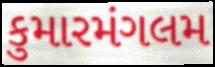
કુમારમંગલમ